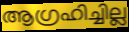
ആഗ്രഹിച്ചില്ല